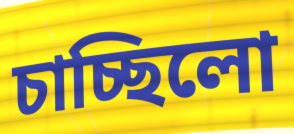
চাচ্ছিলো